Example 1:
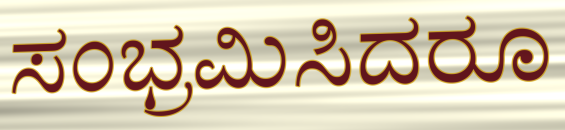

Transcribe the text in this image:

ಸಂಭ್ರಮಿಸಿದರೂ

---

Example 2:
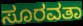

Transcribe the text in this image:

ಸೂರವತಾ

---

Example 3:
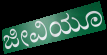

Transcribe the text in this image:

ಜೀವಿಯೂ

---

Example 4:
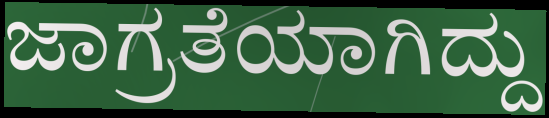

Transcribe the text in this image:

ಜಾಗ್ರತೆಯಾಗಿದ್ದು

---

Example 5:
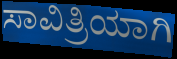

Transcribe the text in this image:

ಸಾವಿತ್ರಿಯಾಗಿ